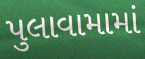
પુલાવામામાં